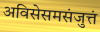
अविसेसमसंजुत्तं